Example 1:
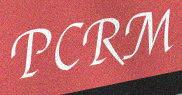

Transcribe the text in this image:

PCRM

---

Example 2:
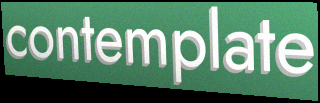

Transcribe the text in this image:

contemplate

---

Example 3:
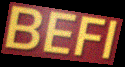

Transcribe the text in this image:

BEFI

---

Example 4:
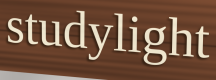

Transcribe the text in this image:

studylight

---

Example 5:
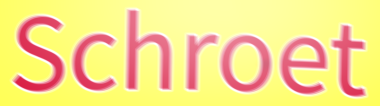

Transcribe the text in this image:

Schroet